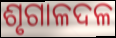
ଶୃଗାଳଦଳ